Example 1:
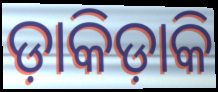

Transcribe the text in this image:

ଡ଼ାକିଡ଼ାକି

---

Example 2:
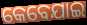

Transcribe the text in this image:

କେବେଯାଇ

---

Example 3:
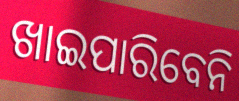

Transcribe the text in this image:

ଖାଇପାରିବେନି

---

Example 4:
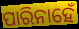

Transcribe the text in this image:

ପାରିନାହେଁ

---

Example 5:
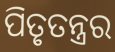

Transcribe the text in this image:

ପିତୃତନ୍ତ୍ରର